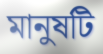
মানুষটি